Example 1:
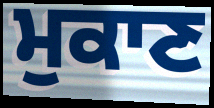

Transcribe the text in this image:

ਮੁਕਾਣ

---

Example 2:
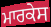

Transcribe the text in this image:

ਮਾਰਕੇਸ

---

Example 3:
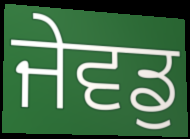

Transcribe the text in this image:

ਜੇਵਡੁ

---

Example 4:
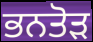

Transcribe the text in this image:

ਭਨਤੋੜ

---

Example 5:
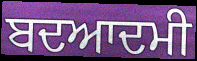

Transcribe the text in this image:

ਬਦਆਦਮੀ